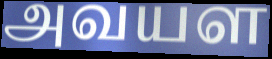
அவயள